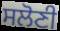
ਸਲੋਣੀ